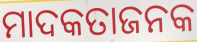
ମାଦକତାଜନକ